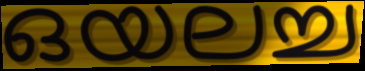
ഒയലച്ച